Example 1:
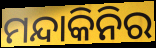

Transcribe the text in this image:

ମନ୍ଦାକିନିର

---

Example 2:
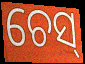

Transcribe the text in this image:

ଚେସ୍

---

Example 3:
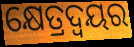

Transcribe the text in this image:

କ୍ଷେତ୍ରଦ୍ୱୟର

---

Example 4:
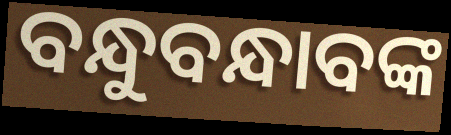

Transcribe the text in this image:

ବନ୍ଧୁବନ୍ଧାବଙ୍କ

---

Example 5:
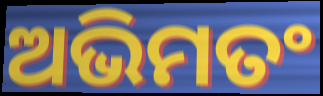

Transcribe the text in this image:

ଅଭିମତଂ